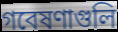
গবেষণাগুলি